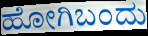
ಹೋಗಿಬಂದು